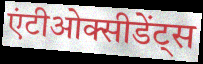
एंटीओक्सीडेंट्स